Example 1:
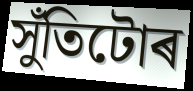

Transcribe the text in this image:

সুঁতিটোৰ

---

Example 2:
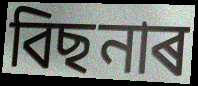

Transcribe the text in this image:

বিছনাৰ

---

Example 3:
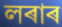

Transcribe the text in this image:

লৰাৰ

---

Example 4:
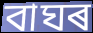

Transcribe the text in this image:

বাঘৰ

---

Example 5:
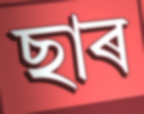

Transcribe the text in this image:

ছাৰ